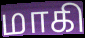
மாகி